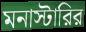
মনাস্টারির